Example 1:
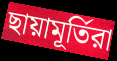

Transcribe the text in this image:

ছায়ামূর্তিরা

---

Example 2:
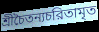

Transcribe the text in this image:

শ্রীচৈতন্যচরিতামৃত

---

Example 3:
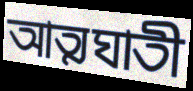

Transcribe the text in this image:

আত্মঘাতী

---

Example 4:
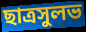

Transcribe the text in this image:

ছাত্রসুলভ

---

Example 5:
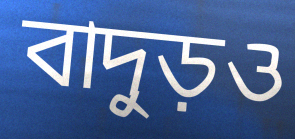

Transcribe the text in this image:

বাদুড়ও